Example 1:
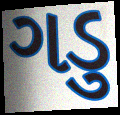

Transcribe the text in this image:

ગડુ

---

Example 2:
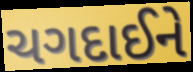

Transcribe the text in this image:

ચગદાઈને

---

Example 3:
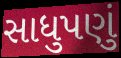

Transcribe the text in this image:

સાધુપણું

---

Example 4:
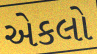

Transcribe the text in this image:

એકલો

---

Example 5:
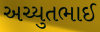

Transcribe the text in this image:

અચ્યુતભાઈ